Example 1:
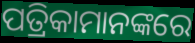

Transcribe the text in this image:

ପତ୍ରିକାମାନଙ୍କରେ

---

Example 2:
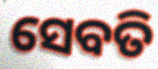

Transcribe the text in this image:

ସେବତି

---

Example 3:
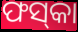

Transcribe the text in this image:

ଫସ୍‌କା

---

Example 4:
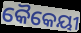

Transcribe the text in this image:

କୈକେୟୀ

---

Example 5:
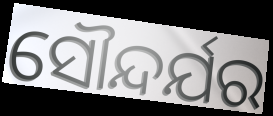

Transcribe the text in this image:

ସୌନ୍ଦର୍ଯର